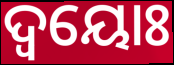
ଦ୍ବୟୋଃ